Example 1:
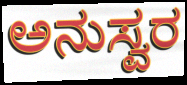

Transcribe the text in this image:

ಅನುಸ್ವರ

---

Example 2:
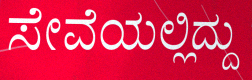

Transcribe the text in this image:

ಸೇವೆಯಲ್ಲಿದ್ದು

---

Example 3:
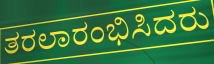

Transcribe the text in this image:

ತರಲಾರಂಭಿಸಿದರು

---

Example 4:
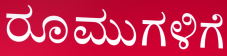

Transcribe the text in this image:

ರೂಮುಗಳಿಗೆ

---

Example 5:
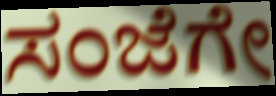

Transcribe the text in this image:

ಸಂಜೆಗೇ